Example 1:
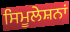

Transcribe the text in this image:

ਸਿਮੂਲੇਸ਼ਨਾਂ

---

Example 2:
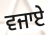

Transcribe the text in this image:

ਵਜਾਏ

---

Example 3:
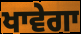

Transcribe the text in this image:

ਖਾਵੇਗਾ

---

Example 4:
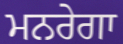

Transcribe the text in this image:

ਮਨਰੇਗਾ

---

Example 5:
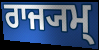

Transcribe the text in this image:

ਰਾਜ੍ਯਮ੍